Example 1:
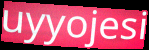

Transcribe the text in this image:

uyyojesi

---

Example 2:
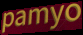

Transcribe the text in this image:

pamyo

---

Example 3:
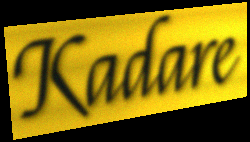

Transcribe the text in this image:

Kadare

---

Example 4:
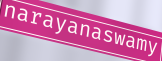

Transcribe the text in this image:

narayanaswamy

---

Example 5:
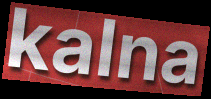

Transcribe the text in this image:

kalna